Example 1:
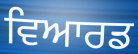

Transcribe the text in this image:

ਵਿਆਰਡ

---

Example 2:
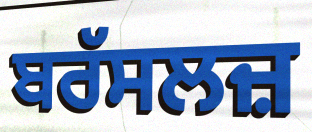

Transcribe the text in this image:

ਬਰੱਸਲਜ਼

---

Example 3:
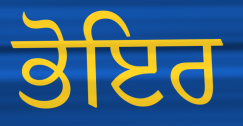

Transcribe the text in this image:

ਭੋਇਰ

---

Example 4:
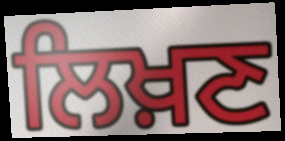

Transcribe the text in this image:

ਲਿਖ਼ਣ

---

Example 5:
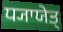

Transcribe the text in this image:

ਧ੍ਯਾਯੇਤ੍